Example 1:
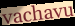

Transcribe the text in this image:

vachavu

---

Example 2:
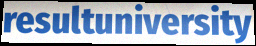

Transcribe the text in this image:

resultuniversity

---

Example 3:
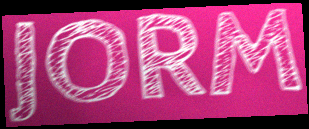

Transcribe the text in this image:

JORM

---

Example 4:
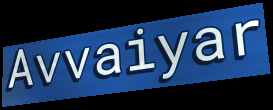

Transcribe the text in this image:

Avvaiyar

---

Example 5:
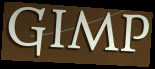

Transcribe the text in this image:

GIMP